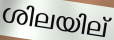
ശിലയില്